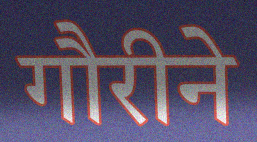
गौरीने